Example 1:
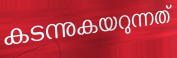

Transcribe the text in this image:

കടന്നുകയറുന്നത്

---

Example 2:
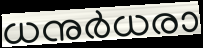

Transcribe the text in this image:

ധനുർധരാ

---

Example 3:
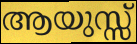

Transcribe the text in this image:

ആയുസ്സ്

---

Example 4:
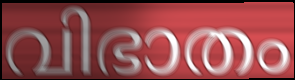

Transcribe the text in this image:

വിഭാതം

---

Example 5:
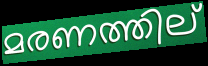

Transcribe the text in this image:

മരണത്തില്